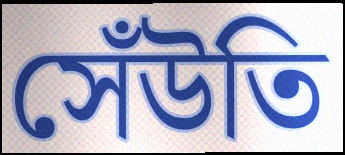
সেঁউতি